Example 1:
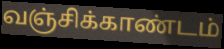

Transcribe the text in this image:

வஞ்சிக்காண்டம்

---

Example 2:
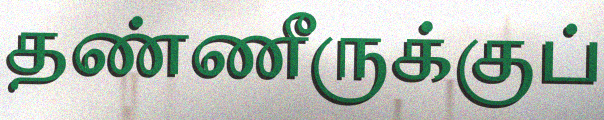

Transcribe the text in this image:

தண்ணீருக்குப்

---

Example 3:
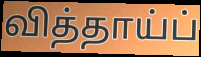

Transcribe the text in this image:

வித்தாய்ப்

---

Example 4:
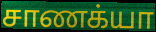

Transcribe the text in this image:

சாணக்யா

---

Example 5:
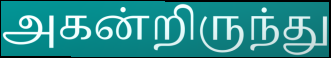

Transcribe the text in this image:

அகன்றிருந்து